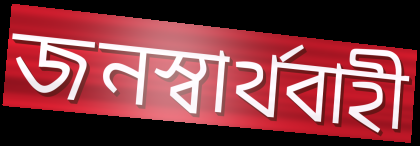
জনস্বার্থবাহী